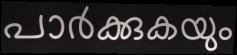
പാർക്കുകയും